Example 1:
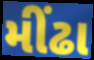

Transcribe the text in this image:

મીંઢા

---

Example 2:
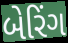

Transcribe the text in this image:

બેરિંગ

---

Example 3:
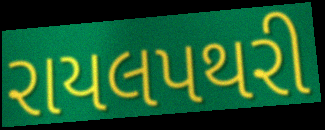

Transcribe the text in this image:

રાયલપથરી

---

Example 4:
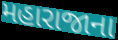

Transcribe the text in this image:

મહારાજાના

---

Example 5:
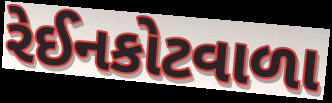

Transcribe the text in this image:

રેઈનકોટવાળા